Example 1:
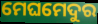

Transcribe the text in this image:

ମେଘମେଦୁର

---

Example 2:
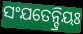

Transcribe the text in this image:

ସଂଯତେନ୍ଦ୍ରିୟଃ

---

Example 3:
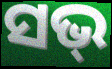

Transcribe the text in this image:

ସଭ୍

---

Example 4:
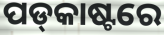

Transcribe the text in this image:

ପଡ୍‌କାଷ୍ଟରେ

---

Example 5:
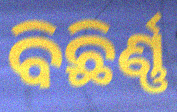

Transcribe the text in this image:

ବିଛିର୍ଣ୍ଣ